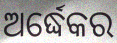
ଅର୍ଦ୍ଧେକର